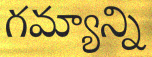
గమ్యాన్ని